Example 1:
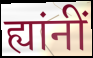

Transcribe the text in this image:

ह्यांनीं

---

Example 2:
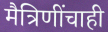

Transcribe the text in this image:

मैत्रिणींचाही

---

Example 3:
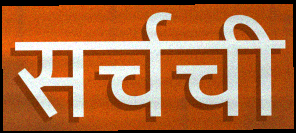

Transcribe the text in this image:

सर्चची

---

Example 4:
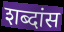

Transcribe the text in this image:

शब्दांस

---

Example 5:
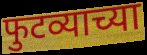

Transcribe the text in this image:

फुटव्याच्या